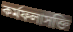
কর্মফলাসক্তি